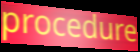
procedure